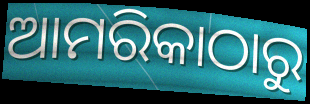
ଆମରିକାଠାରୁ